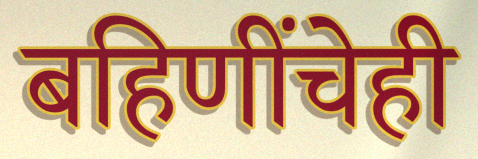
बहिणींचेही